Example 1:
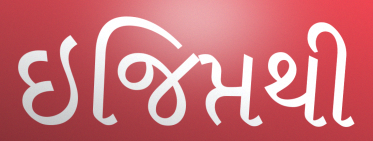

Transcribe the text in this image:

ઇજિપ્તથી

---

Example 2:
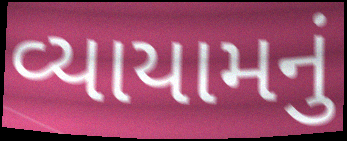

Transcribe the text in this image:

વ્યાયામનું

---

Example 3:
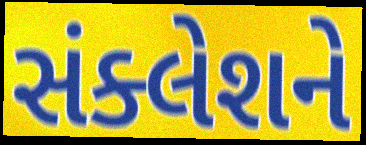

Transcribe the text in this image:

સંક્લેશને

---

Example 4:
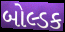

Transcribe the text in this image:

બોલ્ડક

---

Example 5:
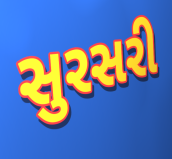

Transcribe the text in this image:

સુરસરી